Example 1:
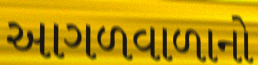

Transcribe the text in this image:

આગળવાળાનો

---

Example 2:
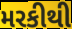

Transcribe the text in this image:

મરકીથી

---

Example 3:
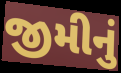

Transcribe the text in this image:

જીમીનું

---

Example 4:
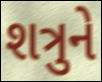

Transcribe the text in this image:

શત્રુને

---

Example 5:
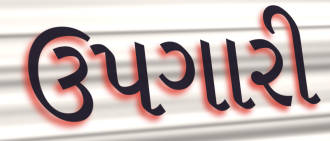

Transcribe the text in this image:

ઉપગારી